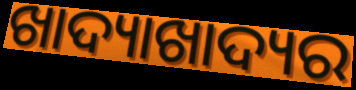
ଖାଦ୍ୟାଖାଦ୍ୟର